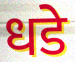
धडे